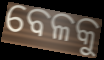
ବେଳକୁ